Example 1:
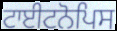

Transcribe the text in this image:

ਟਾਈਟਨੋਪਿਸ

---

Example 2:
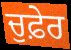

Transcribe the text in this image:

ਚੁਫ਼ੇਰ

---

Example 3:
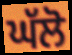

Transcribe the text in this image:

ਘੱਲੋ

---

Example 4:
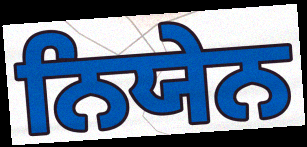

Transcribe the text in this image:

ਨਿਯੇਨ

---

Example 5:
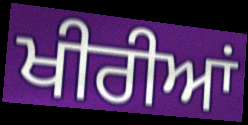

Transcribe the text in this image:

ਖੀਰੀਆਂ